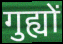
गुह्यों